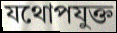
যথোপযুক্ত